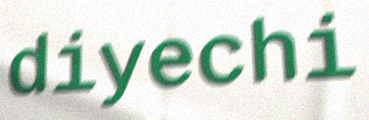
diyechi